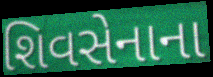
શિવસેનાના